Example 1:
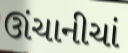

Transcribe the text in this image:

ઊંચાનીચાં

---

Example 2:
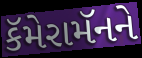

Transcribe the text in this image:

કૅમેરામૅનને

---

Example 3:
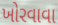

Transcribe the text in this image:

ખોરવાવા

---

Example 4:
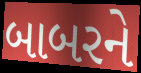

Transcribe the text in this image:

બાબરને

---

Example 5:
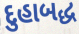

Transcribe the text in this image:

દુહાબદ્ધ